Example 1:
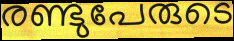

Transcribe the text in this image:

രണ്ടുപേരുടെ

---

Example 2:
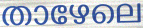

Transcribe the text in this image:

താഴേലെ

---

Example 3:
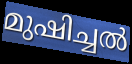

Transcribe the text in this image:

മുഷിച്ചൽ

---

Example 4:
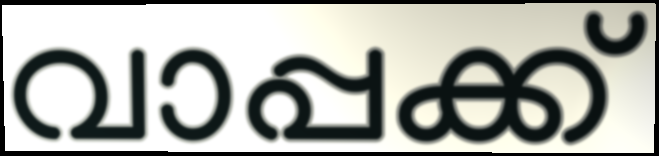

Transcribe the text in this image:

വാപ്പക്ക്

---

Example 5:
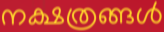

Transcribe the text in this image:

നക്ഷത്രങ്ങൾ